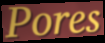
Pores